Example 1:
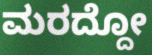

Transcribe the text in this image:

ಮರದ್ದೋ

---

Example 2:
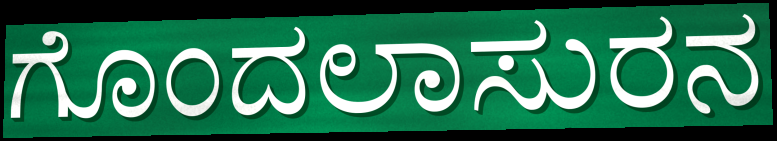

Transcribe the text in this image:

ಗೊಂದಲಾಸುರನ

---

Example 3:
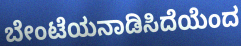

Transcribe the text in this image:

ಬೇಂಟೆಯನಾಡಿಸಿದೆಯೆಂದ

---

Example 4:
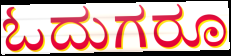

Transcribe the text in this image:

ಓದುಗರೂ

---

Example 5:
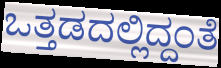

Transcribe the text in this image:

ಒತ್ತಡದಲ್ಲಿದ್ದಂತೆ